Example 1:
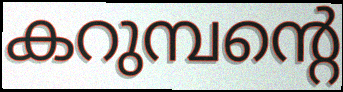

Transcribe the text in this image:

കറുമ്പന്റെ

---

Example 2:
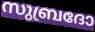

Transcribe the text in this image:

സുബ്രദോ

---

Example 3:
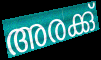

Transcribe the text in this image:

അരക്കു്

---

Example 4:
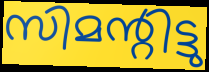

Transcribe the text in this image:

സിമന്റിട്ടു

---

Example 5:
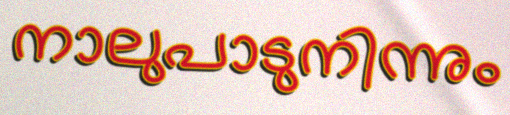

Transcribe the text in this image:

നാലുപാടുനിന്നും